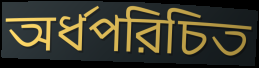
অর্ধপরিচিত